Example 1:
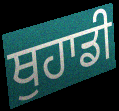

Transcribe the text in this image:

ਥੁਹਾਡੀ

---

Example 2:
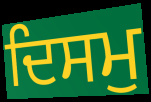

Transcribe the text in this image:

ਦਿਸਮੁ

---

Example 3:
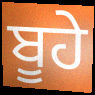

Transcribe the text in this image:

ਬੂਹੇ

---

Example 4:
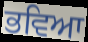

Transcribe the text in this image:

ਭਵਿਆ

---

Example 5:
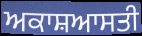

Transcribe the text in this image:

ਅਕਾਸ਼ਆਸਤੀ